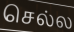
செல்ல